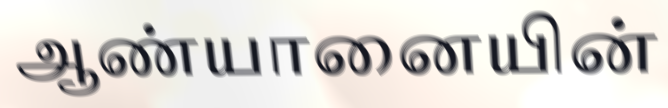
ஆண்யானையின்